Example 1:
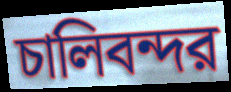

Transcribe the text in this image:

চালিবন্দর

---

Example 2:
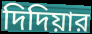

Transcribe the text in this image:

দিদিয়ার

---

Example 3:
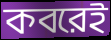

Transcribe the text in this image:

কবরেই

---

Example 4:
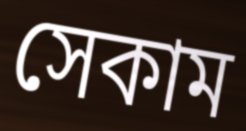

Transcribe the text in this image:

সেকাম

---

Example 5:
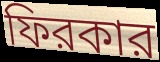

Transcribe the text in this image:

ফিরকার